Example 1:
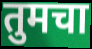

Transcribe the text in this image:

तुमचा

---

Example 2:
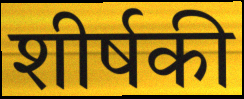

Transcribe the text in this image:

शीर्षकी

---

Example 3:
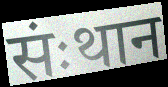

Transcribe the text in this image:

संःथान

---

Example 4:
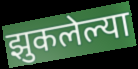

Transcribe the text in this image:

झुकलेल्या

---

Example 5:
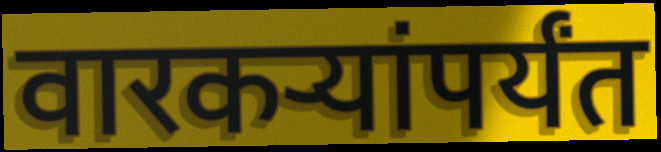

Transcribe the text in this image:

वारकऱ्यांपर्यंत